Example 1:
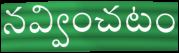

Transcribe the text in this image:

నవ్వించటం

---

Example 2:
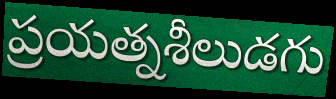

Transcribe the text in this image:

ప్రయత్నశీలుడగు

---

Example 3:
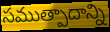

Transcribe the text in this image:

సముత్పాదాన్ని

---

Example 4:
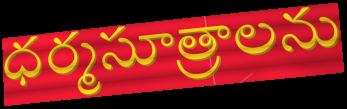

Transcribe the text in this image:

ధర్మసూత్రాలను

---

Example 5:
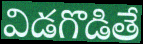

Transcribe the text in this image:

విడగొడితే